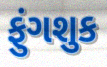
ફુંગશુક